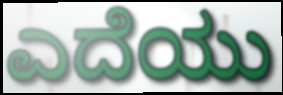
ಎದೆಯು